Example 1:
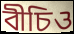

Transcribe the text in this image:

বীচিও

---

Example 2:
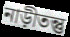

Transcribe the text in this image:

নাড়ীতন্তু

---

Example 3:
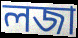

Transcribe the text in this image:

লজা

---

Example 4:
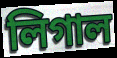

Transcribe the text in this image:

লিগাল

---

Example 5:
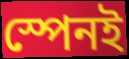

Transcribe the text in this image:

স্পেনই